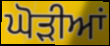
ਘੋੜੀਆਂ